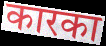
कारका